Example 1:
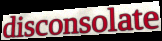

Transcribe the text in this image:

disconsolate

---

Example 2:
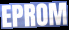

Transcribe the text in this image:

EPROM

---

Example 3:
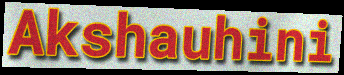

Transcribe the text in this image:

Akshauhini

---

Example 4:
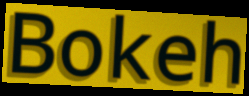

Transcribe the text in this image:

Bokeh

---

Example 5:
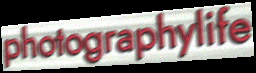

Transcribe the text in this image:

photographylife